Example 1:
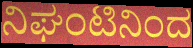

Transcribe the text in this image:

ನಿಘಂಟಿನಿಂದ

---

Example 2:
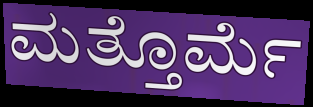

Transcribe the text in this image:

ಮತ್ತೊರ್ಮೆ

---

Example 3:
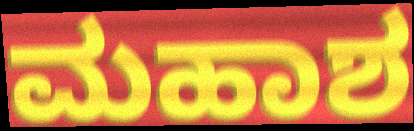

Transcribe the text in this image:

ಮಹಾಶ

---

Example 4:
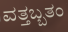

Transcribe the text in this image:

ವತ್ತಬ್ಬತಂ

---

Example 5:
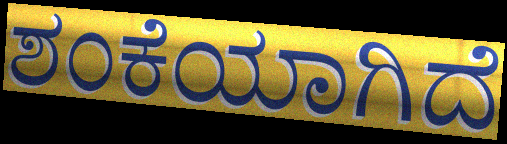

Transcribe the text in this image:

ಶಂಕೆಯಾಗಿದೆ